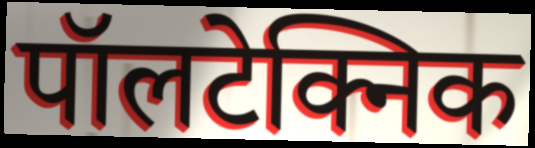
पॉलटेक्निक